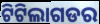
ଟିଟିଲାଗଡର